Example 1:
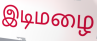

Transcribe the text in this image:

இடிமழை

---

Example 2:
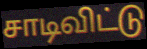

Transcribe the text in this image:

சாடிவிட்டு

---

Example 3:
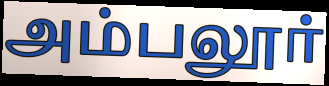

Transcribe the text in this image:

அம்பலூர்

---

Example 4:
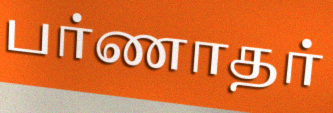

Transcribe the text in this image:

பர்ணாதர்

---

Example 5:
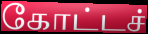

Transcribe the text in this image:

கோட்டச்